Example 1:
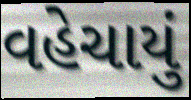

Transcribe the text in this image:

વહેચાયું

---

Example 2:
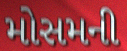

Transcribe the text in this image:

મોસમની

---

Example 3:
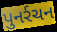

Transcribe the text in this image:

પુનર્રચન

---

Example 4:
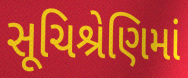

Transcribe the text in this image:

સૂચિશ્રેણિમાં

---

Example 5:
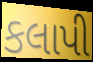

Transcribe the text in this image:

કલાપી